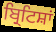
ਬ੍ਰਿਟਿਸ਼ਾਂ